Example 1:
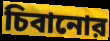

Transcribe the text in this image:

চিবানোর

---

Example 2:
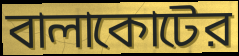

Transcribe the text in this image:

বালাকোটের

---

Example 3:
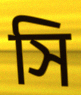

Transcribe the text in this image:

সি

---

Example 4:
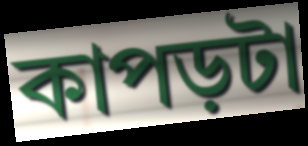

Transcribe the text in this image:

কাপড়টা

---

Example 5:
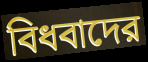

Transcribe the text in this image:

বিধবাদের